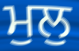
ਮੁਲੁ